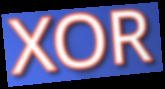
XOR